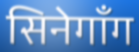
सिनेगाँग